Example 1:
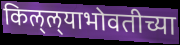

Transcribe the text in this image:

किल्ल्याभोवतीच्या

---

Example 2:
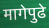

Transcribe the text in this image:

मागेपुढे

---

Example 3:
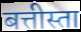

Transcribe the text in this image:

बत्तीस्ता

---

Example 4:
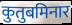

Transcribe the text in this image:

कुतुबमिनार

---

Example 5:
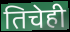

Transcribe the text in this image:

तिचेही